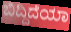
ಬಿದ್ದಿದೆಯಾ